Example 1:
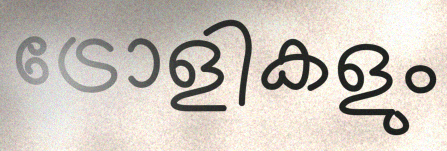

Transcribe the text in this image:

ട്രോളികളും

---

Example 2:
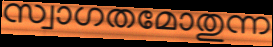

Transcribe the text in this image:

സ്വാഗതമോതുന്ന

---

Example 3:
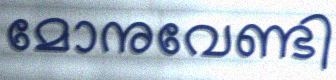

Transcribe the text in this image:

മോനുവേണ്ടി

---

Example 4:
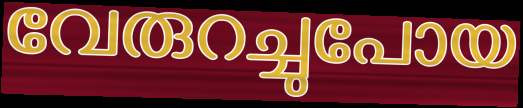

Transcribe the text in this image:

വേരുറച്ചുപോയ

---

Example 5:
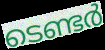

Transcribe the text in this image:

ടെണ്ടർ